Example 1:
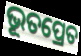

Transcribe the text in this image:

ଭୂତପ୍ରେତ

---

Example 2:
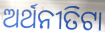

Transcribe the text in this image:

ଅର୍ଥନୀତିଟା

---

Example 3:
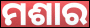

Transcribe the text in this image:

ମଶାର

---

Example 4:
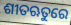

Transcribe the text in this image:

ଶୀତଋତୁରେ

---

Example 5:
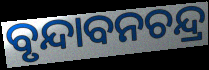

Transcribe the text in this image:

ବୃନ୍ଦାବନଚନ୍ଦ୍ର